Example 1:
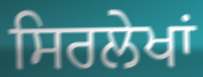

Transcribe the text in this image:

ਸਿਰਲੇਖਾਂ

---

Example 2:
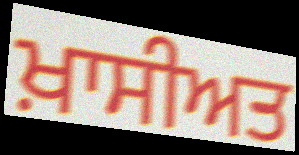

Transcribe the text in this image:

ਖ਼ਾਸੀਅਤ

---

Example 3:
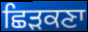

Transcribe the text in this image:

ਛਿੜਕਣਾ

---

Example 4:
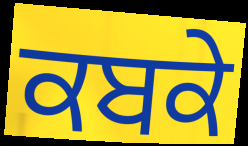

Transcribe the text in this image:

ਕਬਕੇ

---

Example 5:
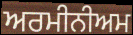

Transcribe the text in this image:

ਅਰਮੀਨੀਅਮ